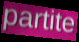
partite